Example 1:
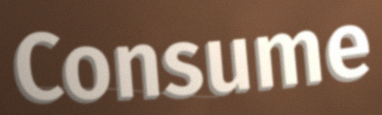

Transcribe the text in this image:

Consume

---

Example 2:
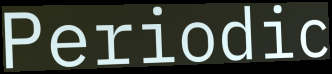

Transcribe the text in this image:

Periodic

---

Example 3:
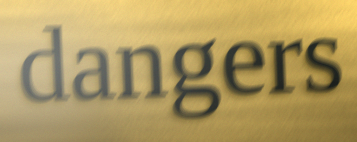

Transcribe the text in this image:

dangers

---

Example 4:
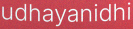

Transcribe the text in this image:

udhayanidhi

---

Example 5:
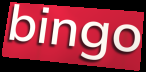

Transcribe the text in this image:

bingo